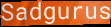
Sadgurus